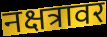
नक्षत्रावर